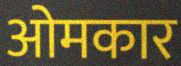
ओमकार